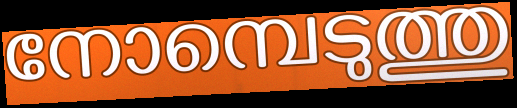
നോമ്പെടുത്തു